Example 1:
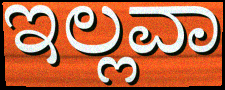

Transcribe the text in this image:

ಇಲ್ಲವಾ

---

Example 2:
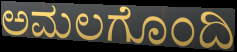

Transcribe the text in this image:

ಅಮಲಗೊಂದಿ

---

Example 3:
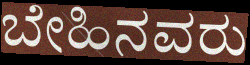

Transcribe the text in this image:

ಬೇಹಿನವರು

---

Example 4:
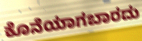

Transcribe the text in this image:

ಕೊನೆಯಾಗಬಾರದು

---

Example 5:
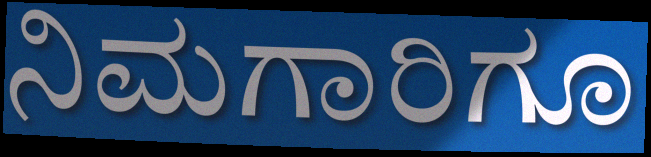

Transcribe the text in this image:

ನಿಮಗಾರಿಗೂ